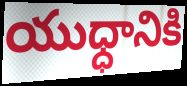
యుధ్ధానికి